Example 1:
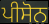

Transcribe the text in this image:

ਪੀਸੋਨ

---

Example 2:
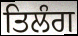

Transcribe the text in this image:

ਤਿਲੰਗ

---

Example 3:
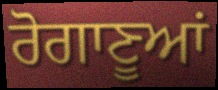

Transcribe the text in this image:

ਰੋਗਾਣੂਆਂ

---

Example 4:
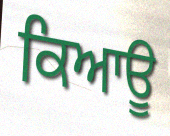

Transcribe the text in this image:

ਕਿਆਊ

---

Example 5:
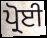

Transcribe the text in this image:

ਪ੍ਰੋਈ